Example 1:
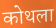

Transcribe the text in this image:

कोथला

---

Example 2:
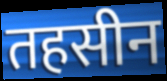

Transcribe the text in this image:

तहसीन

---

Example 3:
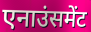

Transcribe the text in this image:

एनाउंसमेंट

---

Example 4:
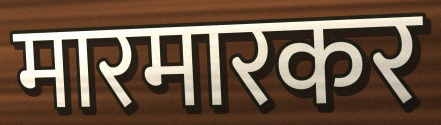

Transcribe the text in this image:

मारमारकर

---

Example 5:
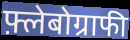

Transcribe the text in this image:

फ़्लेबोग्राफी